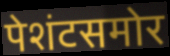
पेशंटसमोर